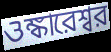
ওঙ্কারেশ্বর